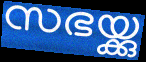
സഭയ്ക്കു